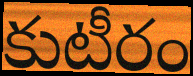
కుటీరం